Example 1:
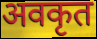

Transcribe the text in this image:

अवकृत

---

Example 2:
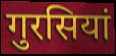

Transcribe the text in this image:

गुरसियां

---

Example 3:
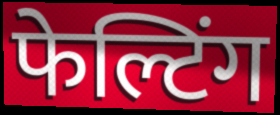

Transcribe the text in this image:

फेल्टिंग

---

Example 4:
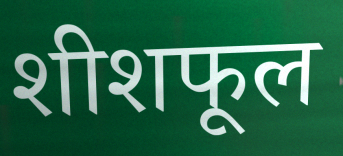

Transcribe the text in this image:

शीशफूल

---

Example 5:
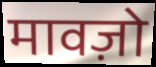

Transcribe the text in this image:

मावज़ो